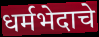
धर्मभेदाचे